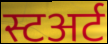
स्टअर्ट